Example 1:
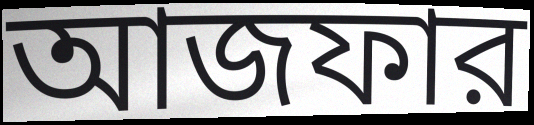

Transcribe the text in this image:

আজফার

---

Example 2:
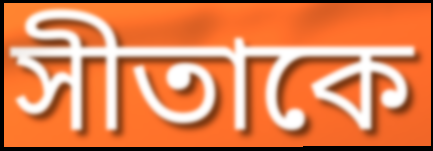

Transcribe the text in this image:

সীতাকে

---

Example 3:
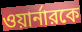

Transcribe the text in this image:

ওয়ার্নারকে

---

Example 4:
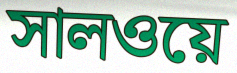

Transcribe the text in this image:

সালওয়ে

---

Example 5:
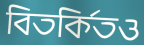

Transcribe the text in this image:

বিতর্কিতও